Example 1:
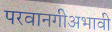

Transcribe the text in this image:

परवानगीअभावी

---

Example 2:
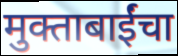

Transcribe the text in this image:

मुक्ताबाईंचा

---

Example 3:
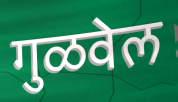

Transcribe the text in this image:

गुळवेल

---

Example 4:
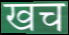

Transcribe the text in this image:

खच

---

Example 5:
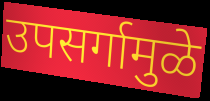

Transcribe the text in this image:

उपसर्गामुळे